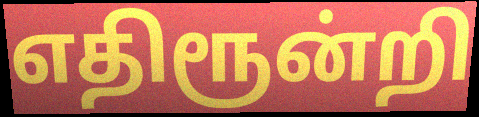
எதிரூன்றி